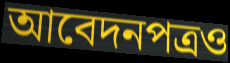
আবেদনপত্রও